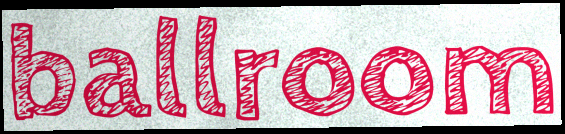
ballroom